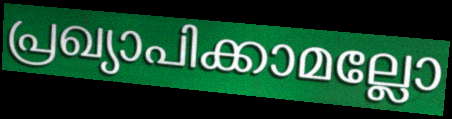
പ്രഖ്യാപിക്കാമല്ലോ